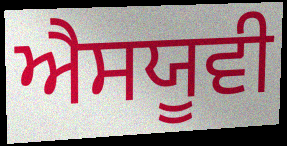
ਐਸਯੂਵੀ